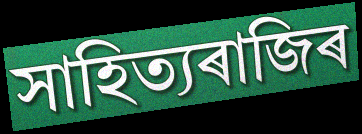
সাহিত্যৰাজিৰ